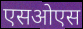
एसओएस